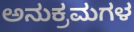
ಅನುಕ್ರಮಗಳ